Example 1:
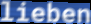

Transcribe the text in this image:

lieben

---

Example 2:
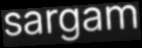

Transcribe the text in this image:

sargam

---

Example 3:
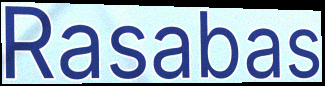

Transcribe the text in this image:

Rasabas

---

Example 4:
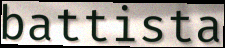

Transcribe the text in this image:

battista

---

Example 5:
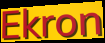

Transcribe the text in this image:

Ekron